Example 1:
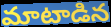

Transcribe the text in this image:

మాటాడిన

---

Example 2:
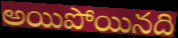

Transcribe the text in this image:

అయిపోయినది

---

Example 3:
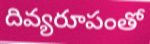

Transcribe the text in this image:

దివ్యరూపంతో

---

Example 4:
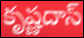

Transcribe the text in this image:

కృష్ణదాస్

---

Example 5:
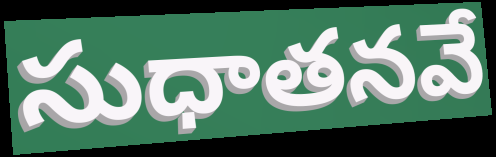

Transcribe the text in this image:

సుధాతనవే